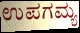
ಉಪಗಮ್ಯ